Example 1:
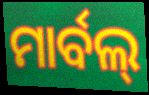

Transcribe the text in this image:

ମାର୍ବଲ୍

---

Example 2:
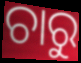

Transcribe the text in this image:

ଚାରୁ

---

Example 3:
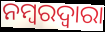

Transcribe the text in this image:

ନମ୍ବରଦ୍ୱାରା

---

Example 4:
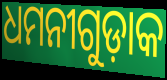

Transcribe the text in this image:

ଧମନୀଗୁଡ଼ାକ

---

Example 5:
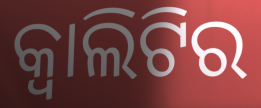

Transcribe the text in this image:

କ୍ୱାଲିଟିର